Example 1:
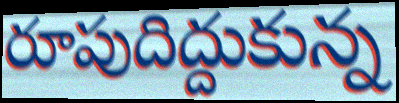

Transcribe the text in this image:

రూపుదిద్దుకున్న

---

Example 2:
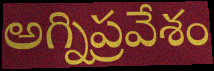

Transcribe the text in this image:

అగ్నిప్రవేశం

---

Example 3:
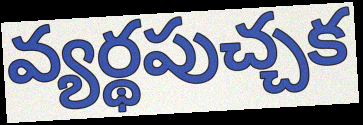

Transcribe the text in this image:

వ్యర్థపుచ్చక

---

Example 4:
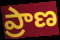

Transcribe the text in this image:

ప్రాణ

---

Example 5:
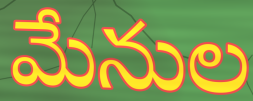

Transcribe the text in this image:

మేనుల